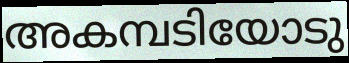
അകമ്പടിയോടു